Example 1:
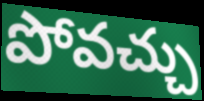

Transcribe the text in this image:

పోవచ్చు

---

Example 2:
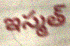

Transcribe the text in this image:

ఇస్మత్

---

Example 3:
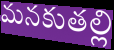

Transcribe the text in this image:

మనకుతల్లి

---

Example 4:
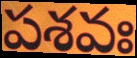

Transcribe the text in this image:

పశవః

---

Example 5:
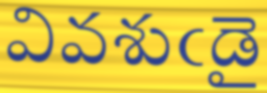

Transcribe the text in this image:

వివశుఁడై